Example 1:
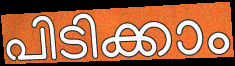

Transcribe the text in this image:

പിടിക്കാം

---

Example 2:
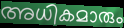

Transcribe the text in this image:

അധികമാരും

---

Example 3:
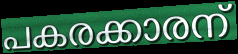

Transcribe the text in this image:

പകരക്കാരന്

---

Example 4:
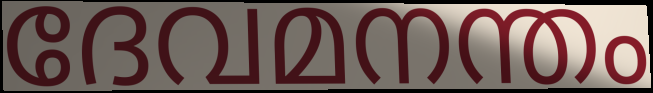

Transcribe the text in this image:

ദേവമനന്തം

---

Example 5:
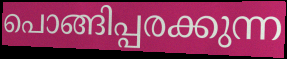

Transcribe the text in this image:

പൊങ്ങിപ്പരക്കുന്ന